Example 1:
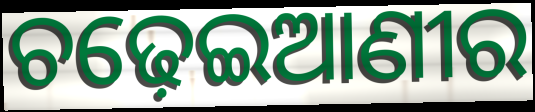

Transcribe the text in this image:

ଚଢ଼େଇଆଣୀର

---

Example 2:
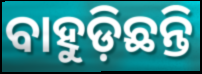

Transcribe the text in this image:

ବାହୁଡ଼ିଛନ୍ତି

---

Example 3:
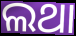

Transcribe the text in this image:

ଲଥା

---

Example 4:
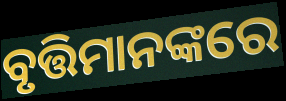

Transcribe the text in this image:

ବୃତ୍ତିମାନଙ୍କରେ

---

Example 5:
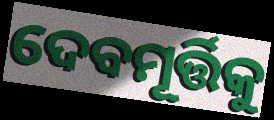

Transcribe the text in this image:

ଦେବମୂର୍ତ୍ତିକୁ